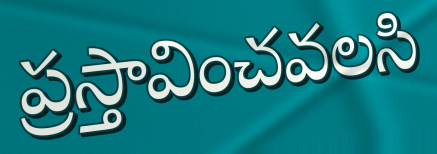
ప్రస్తావించవలసి